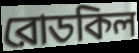
রোডকিল